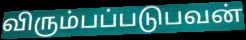
விரும்பப்படுபவன்